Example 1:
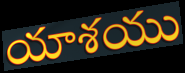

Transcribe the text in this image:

యాశయు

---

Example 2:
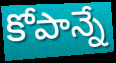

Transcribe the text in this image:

కోపాన్నే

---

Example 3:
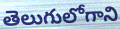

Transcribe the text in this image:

తెలుగులోగాని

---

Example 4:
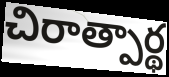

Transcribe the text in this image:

చిరాత్పార్థ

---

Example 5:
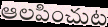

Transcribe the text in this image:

ఆలపించుట